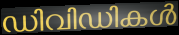
ഡിവിഡികൾ